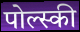
पोल्स्की